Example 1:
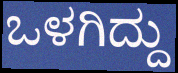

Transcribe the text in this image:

ಒಳಗಿದ್ದು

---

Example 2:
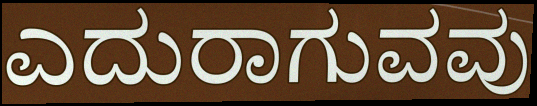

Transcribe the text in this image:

ಎದುರಾಗುವವು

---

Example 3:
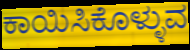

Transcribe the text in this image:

ಕಾಯಿಸಿಕೊಳ್ಳುವ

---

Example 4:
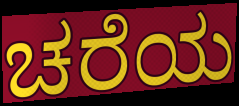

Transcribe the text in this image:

ಚರೆಯ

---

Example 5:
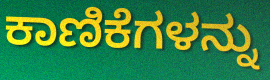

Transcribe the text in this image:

ಕಾಣಿಕೆಗಳನ್ನು